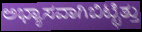
ಅಭ್ಯಾಸವಾಗಿಬಿಟ್ಟಿತ್ತು